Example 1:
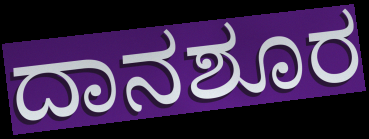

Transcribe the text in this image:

ದಾನಶೂರ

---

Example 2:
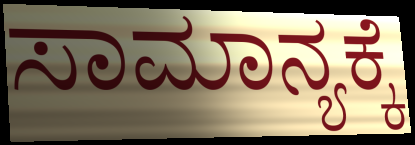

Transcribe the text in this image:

ಸಾಮಾನ್ಯಕ್ಕೆ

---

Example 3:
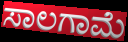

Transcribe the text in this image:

ಸಾಲಗಾಮೆ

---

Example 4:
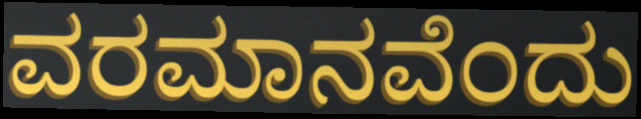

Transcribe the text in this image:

ವರಮಾನವೆಂದು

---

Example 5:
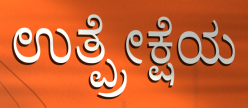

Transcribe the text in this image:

ಉತ್ಪ್ರೇಕ್ಷೆಯ